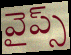
వైప్స్